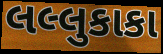
લલ્લુકાકા